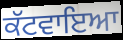
ਕੱਟਵਾਇਆ